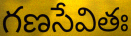
గణసేవితః